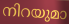
നിറയുമാ